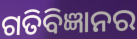
ଗତିବିଜ୍ଞାନର